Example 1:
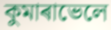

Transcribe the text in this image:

কুমাৰাভেলে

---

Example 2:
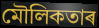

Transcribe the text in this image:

মৌলিকতাৰ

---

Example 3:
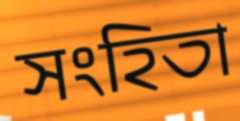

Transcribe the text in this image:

সংহিতা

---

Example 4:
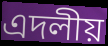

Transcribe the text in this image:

এদলীয়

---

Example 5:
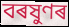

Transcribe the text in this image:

বৰষুণৰ